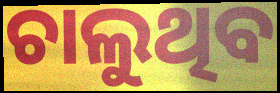
ଚାଲୁଥିବ